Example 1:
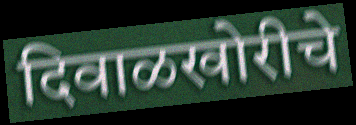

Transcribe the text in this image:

दिवाळखोरीचे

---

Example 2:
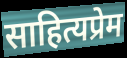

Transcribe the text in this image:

साहित्यप्रेम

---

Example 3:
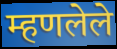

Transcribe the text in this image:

म्हणलेले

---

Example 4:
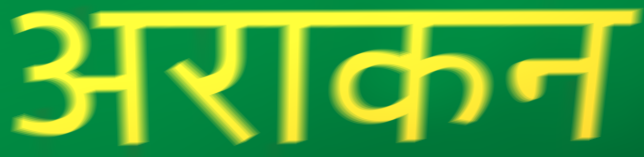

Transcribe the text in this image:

अराकन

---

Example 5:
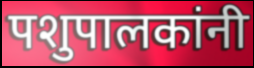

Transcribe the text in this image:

पशुपालकांनी